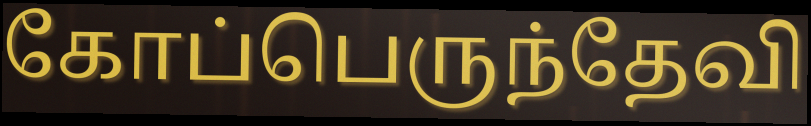
கோப்பெருந்தேவி